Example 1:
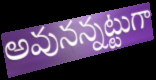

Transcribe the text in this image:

అవునన్నట్టుగా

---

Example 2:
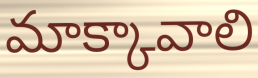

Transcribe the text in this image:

మాక్కావాలి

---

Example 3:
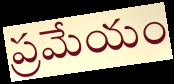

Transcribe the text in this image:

ప్రమేయం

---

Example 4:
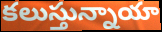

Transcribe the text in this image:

కలుస్తున్నాయా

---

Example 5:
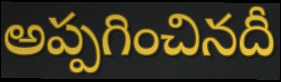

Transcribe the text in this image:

అప్పగించినదీ